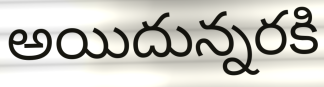
అయిదున్నరకి